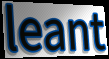
leant